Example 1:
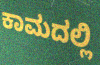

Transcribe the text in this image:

ಕಾಮದಲ್ಲಿ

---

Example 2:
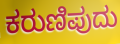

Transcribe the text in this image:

ಕರುಣಿಪುದು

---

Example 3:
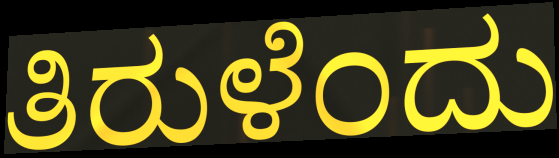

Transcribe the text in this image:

ತಿರುಳೆಂದು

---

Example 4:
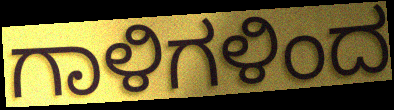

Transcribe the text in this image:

ಗಾಳಿಗಳಿಂದ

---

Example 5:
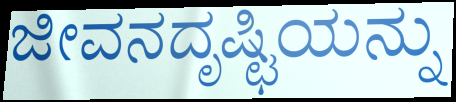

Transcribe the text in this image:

ಜೀವನದೃಷ್ಟಿಯನ್ನು